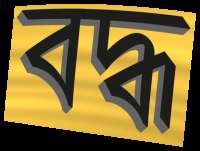
বদ্ধ